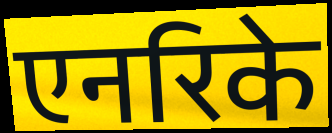
एनरिके